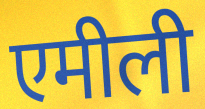
एमीली